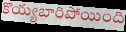
కొయ్యబారిపోయింది